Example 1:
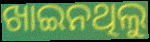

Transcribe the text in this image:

ଖାଇନଥିଲୁ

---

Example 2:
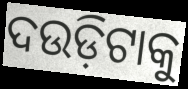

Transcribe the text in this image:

ଦଉଡ଼ିଟାକୁ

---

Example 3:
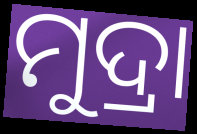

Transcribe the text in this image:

ମୁଦ୍ରା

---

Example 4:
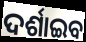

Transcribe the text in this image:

ଦର୍ଶାଇବ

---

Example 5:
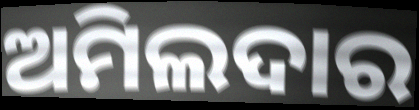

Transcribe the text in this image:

ଅମିଲଦାର